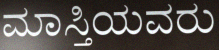
ಮಾಸ್ತಿಯವರು